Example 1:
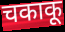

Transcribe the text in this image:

चकाकू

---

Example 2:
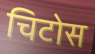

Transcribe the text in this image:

चिटोस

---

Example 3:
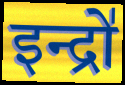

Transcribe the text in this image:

इन्द्रो॑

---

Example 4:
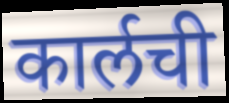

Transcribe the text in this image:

कार्लची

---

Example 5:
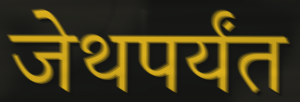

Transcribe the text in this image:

जेथपर्यंत